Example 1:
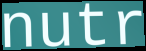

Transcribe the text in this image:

nutr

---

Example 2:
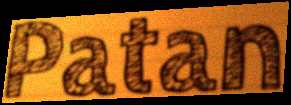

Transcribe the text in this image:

Patan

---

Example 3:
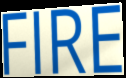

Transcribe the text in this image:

FIRE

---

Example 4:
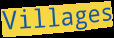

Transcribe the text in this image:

Villages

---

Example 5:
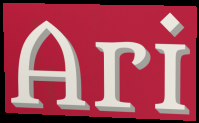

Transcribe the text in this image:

Ari